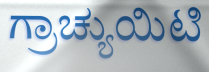
ಗ್ರಾಚ್ಯುಯಿಟಿ